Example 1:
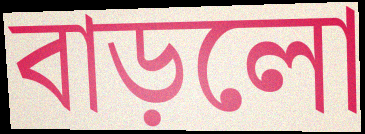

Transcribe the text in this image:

বাড়লো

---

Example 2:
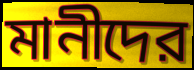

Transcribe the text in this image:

মানীদের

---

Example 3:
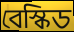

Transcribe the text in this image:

বেস্কিড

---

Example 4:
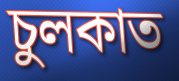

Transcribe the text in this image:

চুলকাত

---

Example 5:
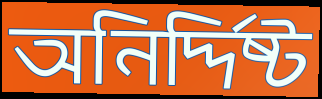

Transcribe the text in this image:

অনির্দ্দিষ্ট